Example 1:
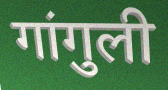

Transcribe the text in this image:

गांगुली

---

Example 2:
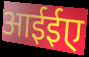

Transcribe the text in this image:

आईईए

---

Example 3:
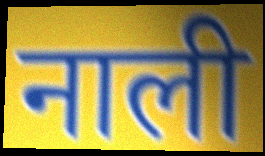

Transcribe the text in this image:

नाली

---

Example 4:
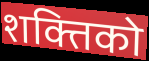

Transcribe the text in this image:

शक्तिको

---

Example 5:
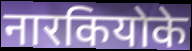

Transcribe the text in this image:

नारकियोके